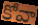
కోవా